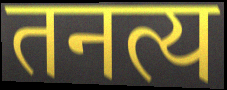
तनत्य